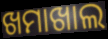
ଖମାଖାଲ